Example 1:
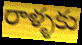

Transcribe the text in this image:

రాళ్ళకు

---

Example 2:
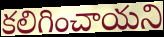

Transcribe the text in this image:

కలిగించాయని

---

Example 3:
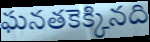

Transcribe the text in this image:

ఘనతకెక్కినది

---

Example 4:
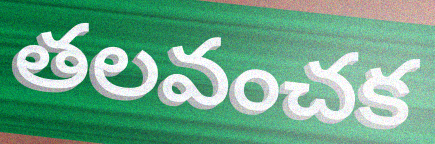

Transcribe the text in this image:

తలవంచక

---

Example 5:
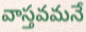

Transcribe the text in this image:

వాస్తవమనే